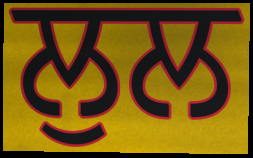
ਲੁਲ